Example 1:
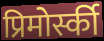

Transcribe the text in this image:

प्रिमोर्स्की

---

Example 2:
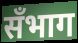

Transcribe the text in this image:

सँभाग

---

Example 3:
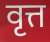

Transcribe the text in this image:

वृत्त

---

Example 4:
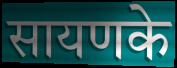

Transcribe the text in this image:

सायणके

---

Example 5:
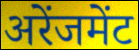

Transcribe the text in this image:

अरेंजमेंट